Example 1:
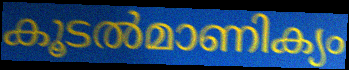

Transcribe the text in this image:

കൂടൽമാണിക്യം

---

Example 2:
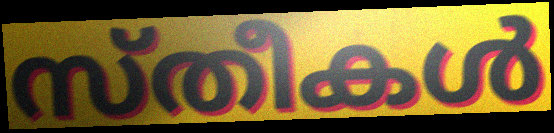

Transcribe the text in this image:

സ്തീകൾ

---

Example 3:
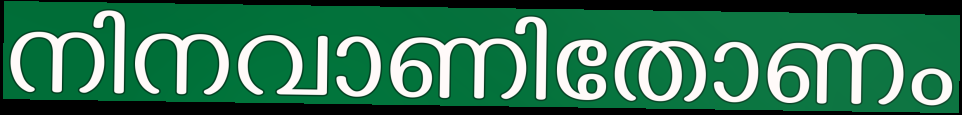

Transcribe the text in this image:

നിനവാണിതോണം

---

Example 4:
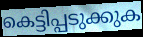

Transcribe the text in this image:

കെട്ടിപ്പടുക്കുക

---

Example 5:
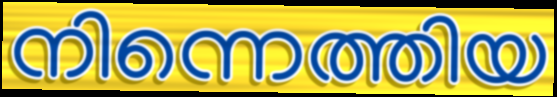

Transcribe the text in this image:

നിന്നെത്തിയ